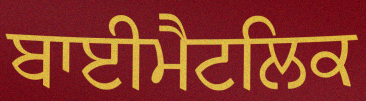
ਬਾਈਮੈਟਲਿਕ